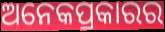
ଅନେକପ୍ରକାରର